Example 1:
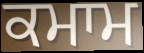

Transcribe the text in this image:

ਕਮਾਮ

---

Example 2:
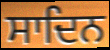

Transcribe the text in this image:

ਸਾਦਿਨ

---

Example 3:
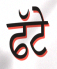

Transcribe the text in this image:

ਫੱਟੇ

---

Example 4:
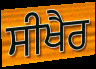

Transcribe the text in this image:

ਸੀਖੈਰ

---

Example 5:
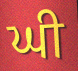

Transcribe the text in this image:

ਘੀ